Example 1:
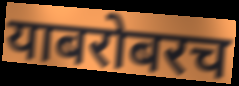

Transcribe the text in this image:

याबरोबरच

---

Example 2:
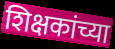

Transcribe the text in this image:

शिक्षकांच्या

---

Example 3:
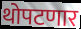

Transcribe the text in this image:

थोपटणार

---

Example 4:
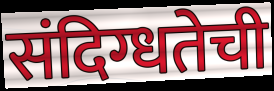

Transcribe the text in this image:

संदिग्धतेची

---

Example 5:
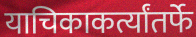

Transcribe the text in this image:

याचिकाकर्त्यांतर्फे